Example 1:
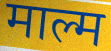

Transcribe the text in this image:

माल्म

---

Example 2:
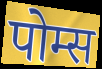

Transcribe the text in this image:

पोम्स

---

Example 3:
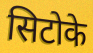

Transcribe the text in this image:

सिटोके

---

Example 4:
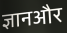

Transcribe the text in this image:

ज्ञानऔर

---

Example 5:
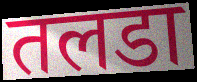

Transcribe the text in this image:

तलडा